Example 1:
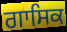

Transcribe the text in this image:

ਗਾਸਿਕ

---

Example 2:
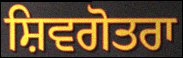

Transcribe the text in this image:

ਸ਼ਿਵਗੋਤਰਾ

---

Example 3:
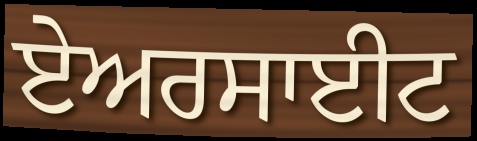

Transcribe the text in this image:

ਏਅਰਸਾਈਟ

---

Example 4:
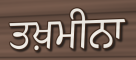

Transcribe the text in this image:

ਤਖ਼ਮੀਨਾ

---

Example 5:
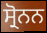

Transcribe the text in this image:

ਸ੍ਰੋਨਨ